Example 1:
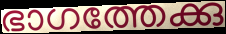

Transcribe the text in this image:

ഭാഗത്തേക്കു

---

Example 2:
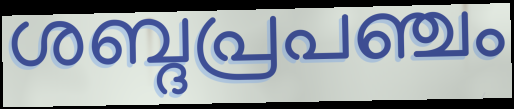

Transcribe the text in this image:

ശബ്ദപ്രപഞ്ചം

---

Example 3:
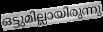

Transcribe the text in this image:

ഒട്ടുമില്ലായിരുന്നു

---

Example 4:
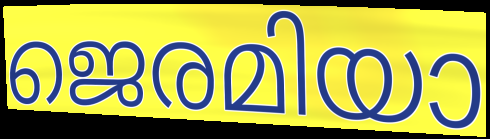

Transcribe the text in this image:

ജെരമിയാ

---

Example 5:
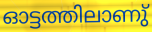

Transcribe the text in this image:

ഓട്ടത്തിലാണു്